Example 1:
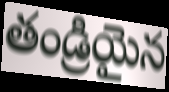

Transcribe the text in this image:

తండ్రియైన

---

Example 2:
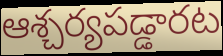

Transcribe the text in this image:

ఆశ్చర్యపడ్డారట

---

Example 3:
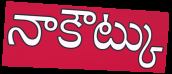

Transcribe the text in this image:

నాకౌట్కు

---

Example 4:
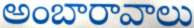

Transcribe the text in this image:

అంబారావాలు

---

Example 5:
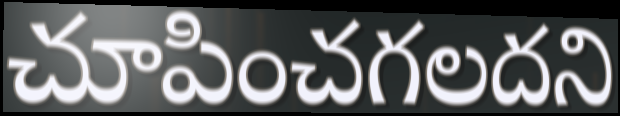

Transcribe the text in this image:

చూపించగలదని